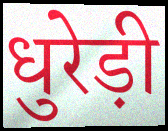
धुरेड़ी